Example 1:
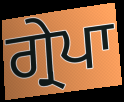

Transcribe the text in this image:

ਗ੍ਰੇਪਾ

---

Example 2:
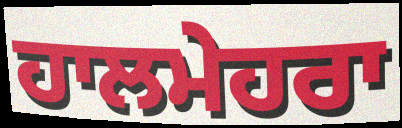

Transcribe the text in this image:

ਹਾਲਮੇਹਰਾ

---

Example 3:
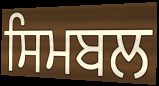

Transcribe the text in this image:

ਸਿਮਬਲ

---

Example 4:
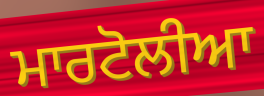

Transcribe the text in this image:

ਮਾਰਟੋਲੀਆ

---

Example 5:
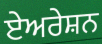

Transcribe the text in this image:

ਏਅਰੇਸ਼ਨ